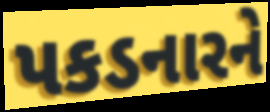
પકડનારને